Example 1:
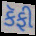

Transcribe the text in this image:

કૅફી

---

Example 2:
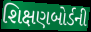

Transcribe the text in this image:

શિક્ષણબોર્ડની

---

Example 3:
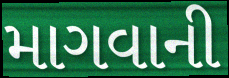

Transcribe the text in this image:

માગવાની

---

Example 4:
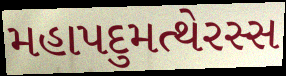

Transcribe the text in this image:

મહાપદુમત્થેરસ્સ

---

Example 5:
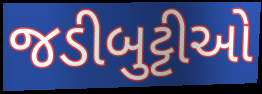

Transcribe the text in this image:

જડીબુટ્ટીઓ